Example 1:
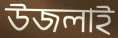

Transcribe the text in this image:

উজলাই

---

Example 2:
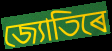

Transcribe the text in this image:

জ্যোতিৰে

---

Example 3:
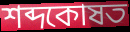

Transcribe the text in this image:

শব্দকোষত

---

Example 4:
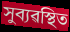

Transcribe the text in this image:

সুব্যৱস্থিত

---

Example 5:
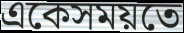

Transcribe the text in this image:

একেসময়তে